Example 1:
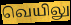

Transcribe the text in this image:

வெயிலு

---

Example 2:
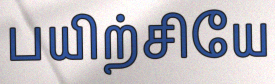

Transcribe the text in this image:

பயிற்சியே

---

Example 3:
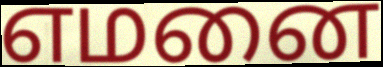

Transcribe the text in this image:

எமனை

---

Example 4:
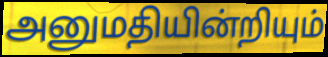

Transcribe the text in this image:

அனுமதியின்றியும்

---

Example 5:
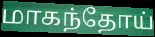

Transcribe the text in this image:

மாகந்தோய்